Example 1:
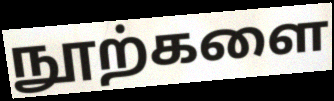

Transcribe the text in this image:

நூற்களை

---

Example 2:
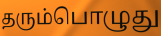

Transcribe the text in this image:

தரும்பொழுது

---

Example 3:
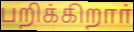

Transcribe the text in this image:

பறிக்கிறார்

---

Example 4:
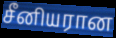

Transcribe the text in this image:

சீனியரான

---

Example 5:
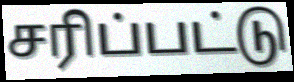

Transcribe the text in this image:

சரிப்பட்டு